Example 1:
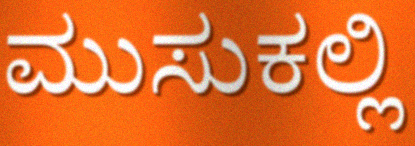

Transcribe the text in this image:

ಮುಸುಕಲ್ಲಿ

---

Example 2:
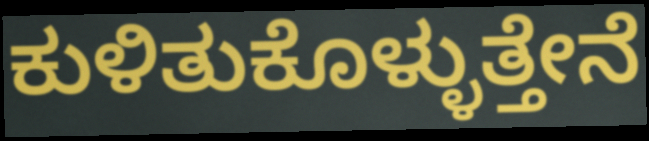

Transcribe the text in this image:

ಕುಳಿತುಕೊಳ್ಳುತ್ತೇನೆ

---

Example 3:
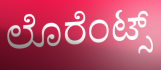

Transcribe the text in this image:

ಲೊರೆಂಟ್ಸ್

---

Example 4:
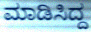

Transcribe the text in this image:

ಮಾಡಿಸಿದ್ದ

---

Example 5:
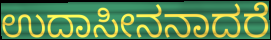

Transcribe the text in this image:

ಉದಾಸೀನನಾದರೆ